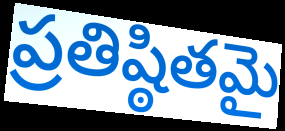
ప్రతిష్ఠితమై